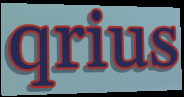
qrius